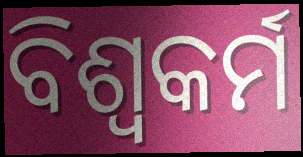
ବିଶ୍ୱକର୍ମ